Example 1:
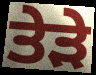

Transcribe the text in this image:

ਤੇੜੇ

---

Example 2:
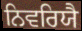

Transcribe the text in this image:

ਨਿਵਰਿਯੈ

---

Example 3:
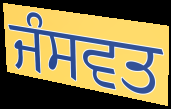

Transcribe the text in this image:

ਜੰਸਵਤ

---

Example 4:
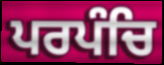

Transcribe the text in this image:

ਪਰਪੰਚਿ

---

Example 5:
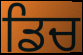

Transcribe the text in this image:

ਡਿਚ